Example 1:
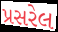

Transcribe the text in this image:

પ્રસરેલ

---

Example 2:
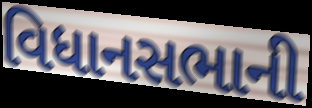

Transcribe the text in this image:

વિધાનસભાની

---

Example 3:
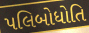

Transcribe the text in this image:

પલિબોધોતિ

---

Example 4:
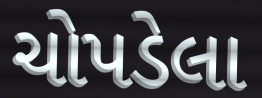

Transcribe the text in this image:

ચોપડેલા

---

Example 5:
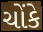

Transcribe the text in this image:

ચોંકે